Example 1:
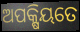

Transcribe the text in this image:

ଅପକ୍ଷିୟତେ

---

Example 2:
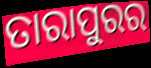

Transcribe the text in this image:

ତାରାପୁରର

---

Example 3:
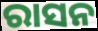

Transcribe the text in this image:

ରାସନ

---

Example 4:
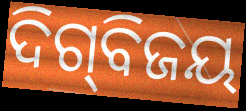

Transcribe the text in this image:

ଦିଗ୍‌ବିଜୟ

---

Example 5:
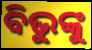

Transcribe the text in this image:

ବିଭୁଙ୍କୁ